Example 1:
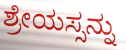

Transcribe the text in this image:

ಶ್ರೇಯಸ್ಸನ್ನು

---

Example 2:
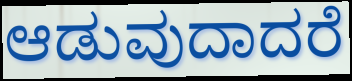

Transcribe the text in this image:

ಆಡುವುದಾದರೆ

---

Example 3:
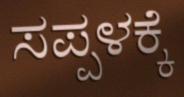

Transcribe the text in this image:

ಸಪ್ಪಳಕ್ಕೆ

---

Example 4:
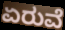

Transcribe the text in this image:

ಏರುವೆ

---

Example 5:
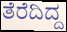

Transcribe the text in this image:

ತೆರೆದಿದ್ದ